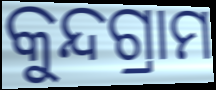
କୁନ୍ଦଗ୍ରାମ